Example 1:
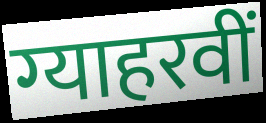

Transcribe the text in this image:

ग्याहरवीं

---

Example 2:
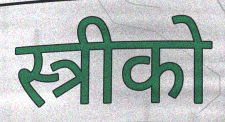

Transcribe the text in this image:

स्त्रीको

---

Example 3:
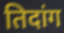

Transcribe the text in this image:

तिदांग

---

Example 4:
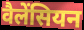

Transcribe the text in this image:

वैलेंसियन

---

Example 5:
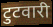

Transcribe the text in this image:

टुटवारी